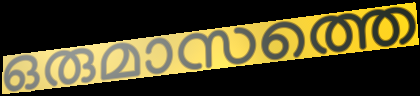
ഒരുമാസത്തെ